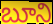
బూని